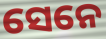
ସେନେ